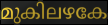
മുകിലഴകേ